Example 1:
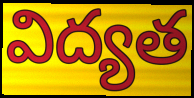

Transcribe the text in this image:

విద్యత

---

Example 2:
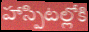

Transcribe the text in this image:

హాస్పిటల్లోకి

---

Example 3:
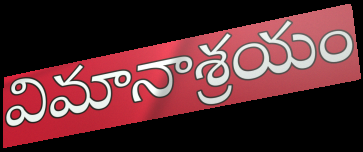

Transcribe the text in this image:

విమానాశ్రయం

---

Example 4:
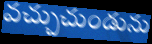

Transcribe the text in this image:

వచ్చుచుండును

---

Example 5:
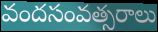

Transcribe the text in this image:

వందసంవత్సరాలు